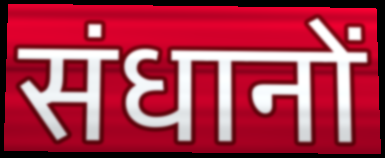
संधानों